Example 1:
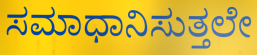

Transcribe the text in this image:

ಸಮಾಧಾನಿಸುತ್ತಲೇ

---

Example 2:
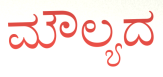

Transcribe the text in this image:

ಮೌಲ್ಯದ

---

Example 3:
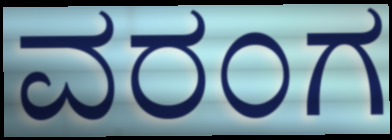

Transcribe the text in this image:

ವರಂಗ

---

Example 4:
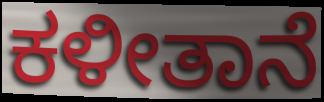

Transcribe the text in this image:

ಕಳೀತಾನೆ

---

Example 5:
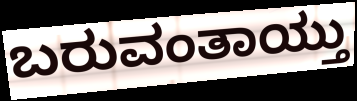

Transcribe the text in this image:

ಬರುವಂತಾಯ್ತು